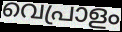
വെപ്രാളം